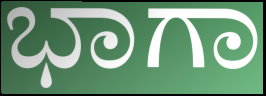
ಭಾಗಾ